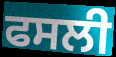
ਫਸਲੀ